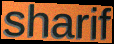
sharif